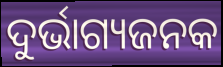
ଦୁର୍ଭାଗ୍ୟଜନକ